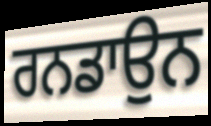
ਰਨਡਾਉਨ